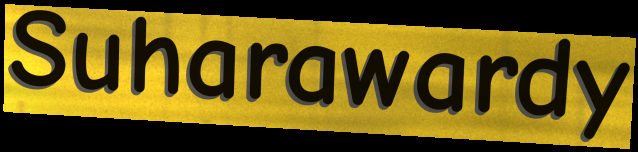
Suharawardy